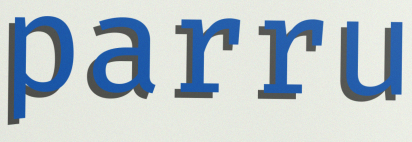
parru